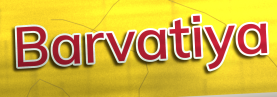
Barvatiya